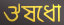
ঔষধো